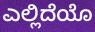
ಎಲ್ಲಿದೆಯೊ